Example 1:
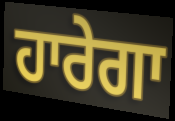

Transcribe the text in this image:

ਹਾਰੇਗਾ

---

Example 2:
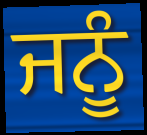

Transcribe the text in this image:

ਜਨੂੰ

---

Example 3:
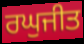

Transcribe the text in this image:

ਰਘੁਜੀਤ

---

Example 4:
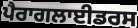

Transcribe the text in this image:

ਪੈਰਾਗਲਾਈਡਰਸ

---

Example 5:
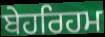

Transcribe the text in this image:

ਬੇਹਰਿਹਮ